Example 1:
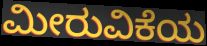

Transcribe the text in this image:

ಮೀರುವಿಕೆಯ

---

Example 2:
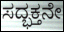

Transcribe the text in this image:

ಸದ್ಭಕ್ತನೇ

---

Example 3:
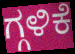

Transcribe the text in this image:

ಗ್ಗಳಿಕೆ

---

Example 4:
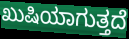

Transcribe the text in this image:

ಖುಷಿಯಾಗುತ್ತದೆ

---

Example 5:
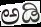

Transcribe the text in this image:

ಅಡಿ